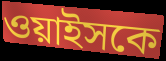
ওয়াইসকে